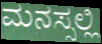
ಮನಸ್ಸಲ್ಲಿ